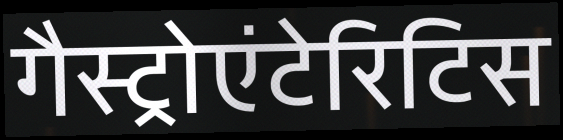
गैस्ट्रोएंटेरिटिस